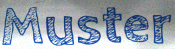
Muster